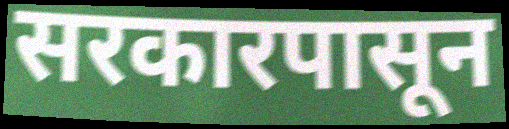
सरकारपासून